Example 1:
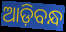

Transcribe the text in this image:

ଆଡ଼ିବନ୍ଧ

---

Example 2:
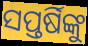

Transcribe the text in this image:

ସପ୍ତର୍ଷିଙ୍କୁ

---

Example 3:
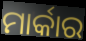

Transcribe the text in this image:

ମାର୍କାର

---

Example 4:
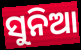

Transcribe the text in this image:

ସୁନିଆ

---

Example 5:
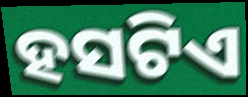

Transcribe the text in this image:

ହସଟିଏ